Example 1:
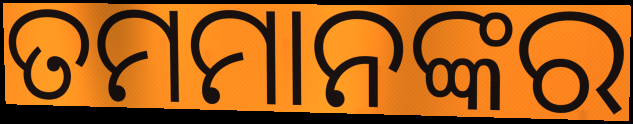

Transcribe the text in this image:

ତମମାନଙ୍କର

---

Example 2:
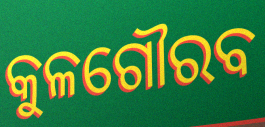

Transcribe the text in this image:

କୁଳଗୌରବ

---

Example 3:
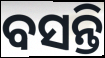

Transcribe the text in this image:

ବସନ୍ତି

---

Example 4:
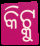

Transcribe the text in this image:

କିଟ୍କୁ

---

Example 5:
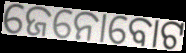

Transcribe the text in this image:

ଜେନୋବୋଟ